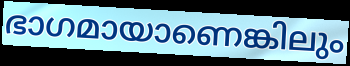
ഭാഗമായാണെങ്കിലും